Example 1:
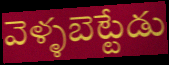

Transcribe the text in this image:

వెళ్ళబెట్టేడు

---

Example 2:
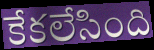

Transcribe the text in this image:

కేకలేసింది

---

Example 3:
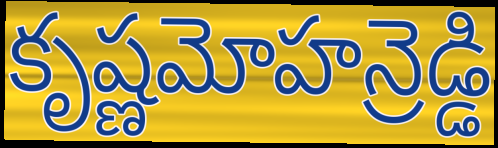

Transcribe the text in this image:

కృష్ణమోహన్రెడ్డి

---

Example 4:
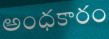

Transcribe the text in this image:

అంధకారం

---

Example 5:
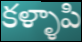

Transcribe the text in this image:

కళ్ళాపి